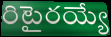
రిటైరయ్యే